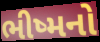
ભીષ્મનો